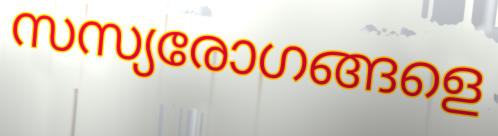
സസ്യരോഗങ്ങളെ